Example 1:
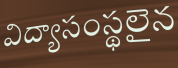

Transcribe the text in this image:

విద్యాసంస్థలైన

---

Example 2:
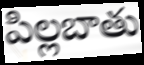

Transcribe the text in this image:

పిల్లబాతు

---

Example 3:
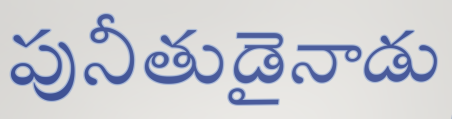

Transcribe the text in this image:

పునీతుడైనాడు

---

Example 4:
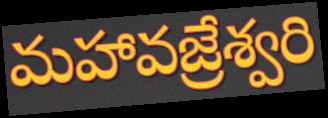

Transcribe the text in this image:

మహావజ్రేశ్వరి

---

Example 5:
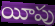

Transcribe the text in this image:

యీపు